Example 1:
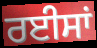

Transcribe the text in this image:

ਰਈਸਾਂ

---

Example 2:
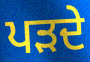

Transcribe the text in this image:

ਪੜਦੇ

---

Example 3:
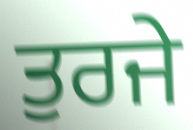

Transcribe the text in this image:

ਤੁਰਜੇ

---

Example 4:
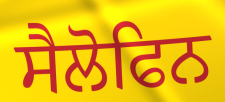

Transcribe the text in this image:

ਸੈਲੋਫਿਨ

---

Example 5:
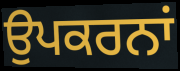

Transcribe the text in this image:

ਉਪਕਰਨਾਂ